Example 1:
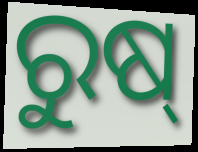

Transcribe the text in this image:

ରୁଷ୍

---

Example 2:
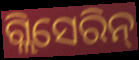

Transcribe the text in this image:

ଗ୍ଲିସେରିନ୍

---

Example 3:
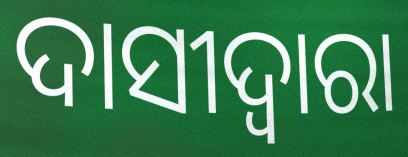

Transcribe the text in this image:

ଦାସୀଦ୍ୱାରା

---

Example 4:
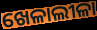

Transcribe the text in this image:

ଖେଳାଲୀଳା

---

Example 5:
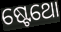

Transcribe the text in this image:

ଷ୍ଟେଥୋ